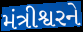
મંત્રીશ્વરને